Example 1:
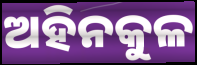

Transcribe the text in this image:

ଅହିନକୁଳ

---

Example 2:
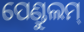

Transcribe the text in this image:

ପେଣ୍ଡୁଲମ୍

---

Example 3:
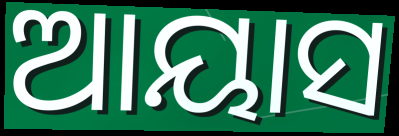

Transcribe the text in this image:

ଆୟାସ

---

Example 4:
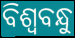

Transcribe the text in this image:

ବିଶ୍ୱବନ୍ଧୁ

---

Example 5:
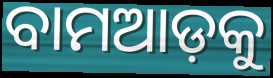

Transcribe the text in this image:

ବାମଆଡ଼କୁ